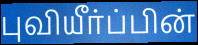
புவியீர்ப்பின்